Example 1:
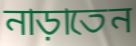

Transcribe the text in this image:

নাড়াতেন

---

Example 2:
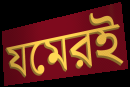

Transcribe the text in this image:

যমেরই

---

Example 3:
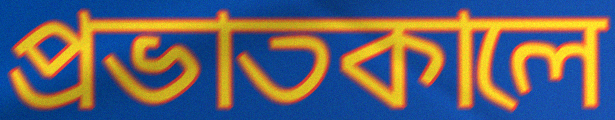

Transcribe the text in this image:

প্রভাতকালে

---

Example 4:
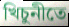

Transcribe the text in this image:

খিচুনীতে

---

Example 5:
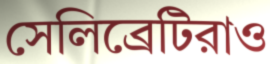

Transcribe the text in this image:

সেলিব্রেটিরাও